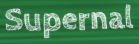
Supernal